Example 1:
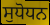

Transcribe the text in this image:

ਸੁਧੋਧਨ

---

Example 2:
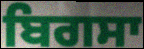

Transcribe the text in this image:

ਬਿਗਸਾ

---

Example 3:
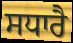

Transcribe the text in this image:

ਸਧਾਰੈ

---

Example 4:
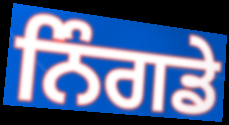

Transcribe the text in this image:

ਨਿੰਗਡੇ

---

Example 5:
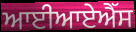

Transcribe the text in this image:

ਆਈਆਏਐੱਸ